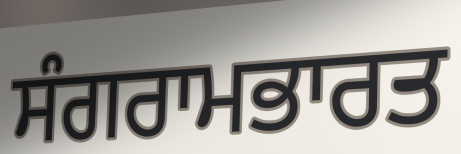
ਸੰਗਰਾਮਭਾਰਤ